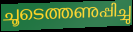
ചൂടെത്തണുപ്പിച്ചു